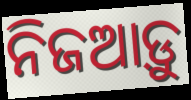
ନିଜଆଡ଼ୁ